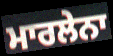
ਮਾਰਲੇਨਾ